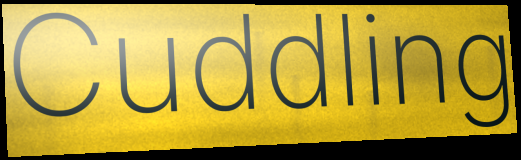
Cuddling